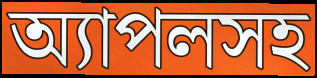
অ্যাপলসহ